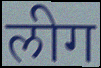
लीग